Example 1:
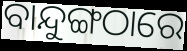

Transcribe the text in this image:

ବାନ୍ଦୁଙ୍ଗଠାରେ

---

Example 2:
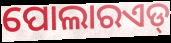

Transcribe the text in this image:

ପୋଲାରଏଡ୍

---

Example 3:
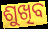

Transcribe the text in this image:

ଶୁଖିବ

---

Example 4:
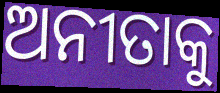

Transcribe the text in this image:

ଅନୀତାକୁ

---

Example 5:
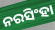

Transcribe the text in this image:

ନରସିଂହା